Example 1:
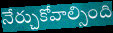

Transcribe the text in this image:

నేర్చుకోవాల్సింది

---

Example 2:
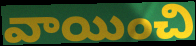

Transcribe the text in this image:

వాయించి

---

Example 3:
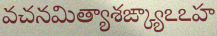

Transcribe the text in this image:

వచనమిత్యాశఙ్క్యాఽఽహ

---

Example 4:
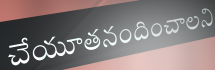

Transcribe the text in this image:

చేయూతనందించాలని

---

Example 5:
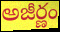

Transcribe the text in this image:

అజీర్ణం